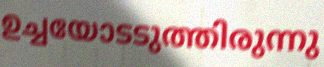
ഉച്ചയോടടുത്തിരുന്നു